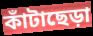
কাঁটাছেড়া